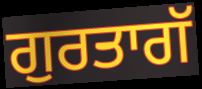
ਗੁਰਤਾਗੱ